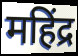
महिंद्र